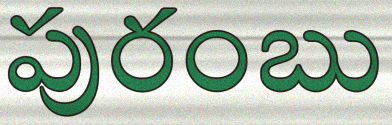
పురంబు